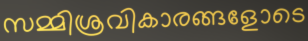
സമ്മിശ്രവികാരങ്ങളോടെ